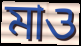
মাও